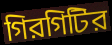
গিরগিটির